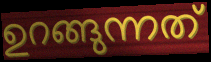
ഉറങ്ങുന്നത്